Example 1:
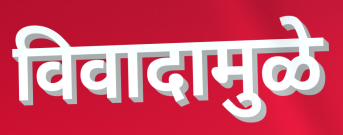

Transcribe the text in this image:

विवादामुळे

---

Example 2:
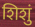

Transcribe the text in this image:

शिशुं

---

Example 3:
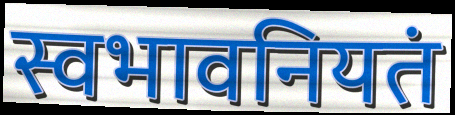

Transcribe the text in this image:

स्वभावनियतं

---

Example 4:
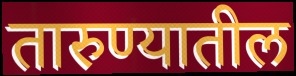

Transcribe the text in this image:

तारुण्यातील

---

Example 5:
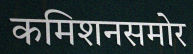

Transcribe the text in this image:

कमिशनसमोर